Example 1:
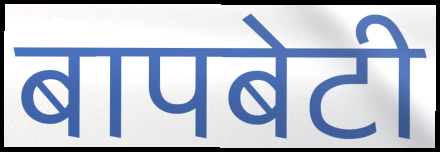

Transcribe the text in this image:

बापबेटी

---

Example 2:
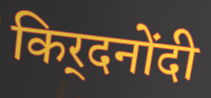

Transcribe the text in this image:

किर्दनोंदी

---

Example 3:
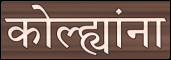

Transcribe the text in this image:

कोल्ह्यांना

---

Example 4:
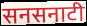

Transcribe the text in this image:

सनसनाटी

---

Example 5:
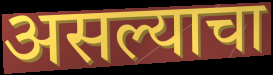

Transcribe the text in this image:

असल्‍याचा